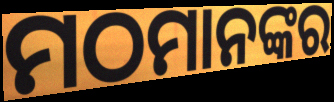
ମଠମାନଙ୍କର